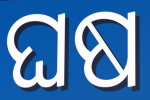
ଘଷ